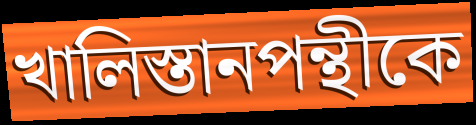
খালিস্তানপন্থীকে